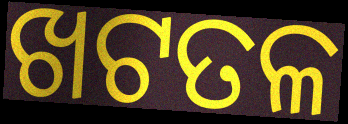
ଖଟତଳ